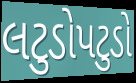
લટુડોપટુડો